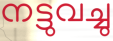
നട്ടുവച്ചു